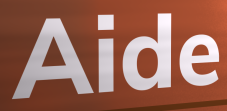
Aide